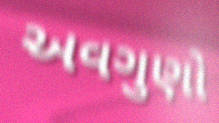
અવગુણો